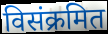
विसंक्रमित